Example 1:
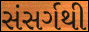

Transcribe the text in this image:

સંસર્ગથી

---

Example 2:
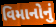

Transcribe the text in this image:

વિમાનોનું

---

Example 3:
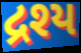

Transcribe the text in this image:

દ્રશ્ય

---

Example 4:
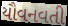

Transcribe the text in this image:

યૌવનવતી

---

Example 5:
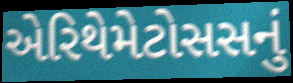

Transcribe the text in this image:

એરિથેમેટોસસનું